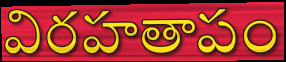
విరహతాపం